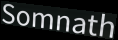
Somnath